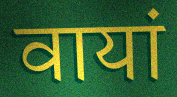
वायां